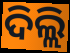
ଦିଲ୍ଲି